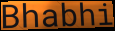
Bhabhi